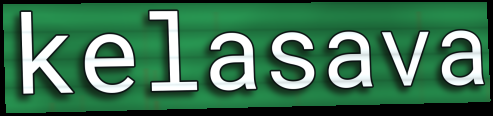
kelasava